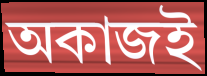
অকাজই